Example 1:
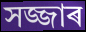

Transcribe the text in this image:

সজ্জাৰ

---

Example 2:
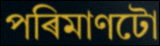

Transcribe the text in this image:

পৰিমাণটো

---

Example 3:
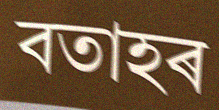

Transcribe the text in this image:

বতাহৰ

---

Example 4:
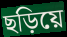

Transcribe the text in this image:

ছড়িয়ে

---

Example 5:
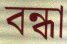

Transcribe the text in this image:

বন্ধা